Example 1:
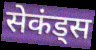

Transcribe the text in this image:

सेकंड्स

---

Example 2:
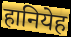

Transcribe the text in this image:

हानियेह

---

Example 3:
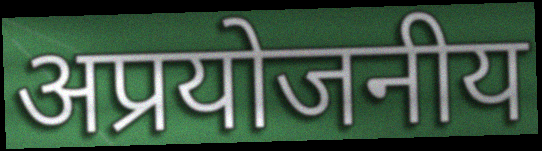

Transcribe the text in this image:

अप्रयोजनीय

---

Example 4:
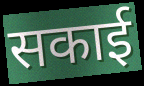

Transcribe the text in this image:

सकाई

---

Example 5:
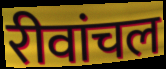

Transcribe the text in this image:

रीवांचल